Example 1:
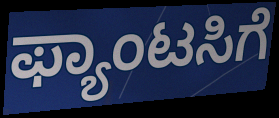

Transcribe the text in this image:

ಫ್ಯಾಂಟಸಿಗೆ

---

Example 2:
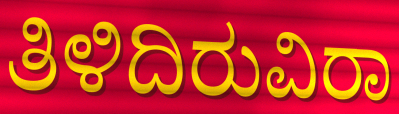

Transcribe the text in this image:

ತಿಳಿದಿರುವಿರಾ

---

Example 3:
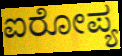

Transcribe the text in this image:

ಐರೋಪ್ಯ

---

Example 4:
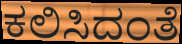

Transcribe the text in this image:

ಕಲಿಸಿದಂತೆ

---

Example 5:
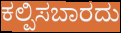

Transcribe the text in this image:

ಕಲ್ಪಿಸಬಾರದು